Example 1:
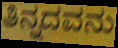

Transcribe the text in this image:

ತಿನ್ನದವನು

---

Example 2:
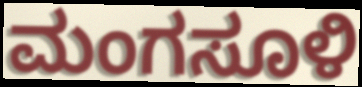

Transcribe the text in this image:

ಮಂಗಸೂಳಿ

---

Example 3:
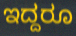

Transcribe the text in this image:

ಇದ್ದರೂ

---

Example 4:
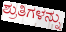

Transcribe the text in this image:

ಶ್ರುತಿಗಳನ್ನು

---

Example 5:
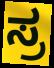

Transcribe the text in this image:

ಸ್ರ